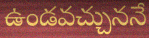
ఉండవచ్చుననే